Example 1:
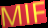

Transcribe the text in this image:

MIF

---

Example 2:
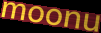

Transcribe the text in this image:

moonu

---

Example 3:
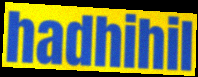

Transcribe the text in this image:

hadhihil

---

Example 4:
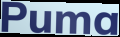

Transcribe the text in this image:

Puma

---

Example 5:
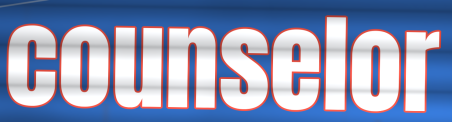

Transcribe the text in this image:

counselor